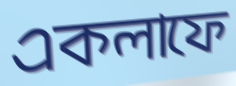
একলাফে